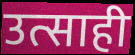
उत्साही